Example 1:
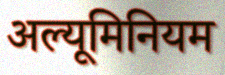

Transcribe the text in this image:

अल्यूमिनियम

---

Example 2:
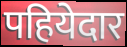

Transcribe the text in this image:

पहियेदार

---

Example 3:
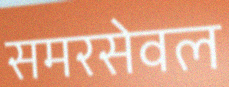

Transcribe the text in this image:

समरसेवल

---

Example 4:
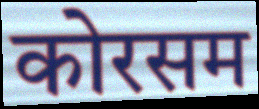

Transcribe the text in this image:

कोरसम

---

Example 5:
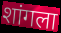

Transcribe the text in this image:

शांगला